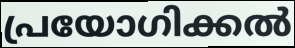
പ്രയോഗിക്കൽ